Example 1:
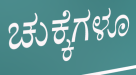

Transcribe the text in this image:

ಚುಕ್ಕೆಗಳೂ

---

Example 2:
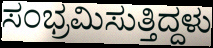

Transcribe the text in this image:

ಸಂಭ್ರಮಿಸುತ್ತಿದ್ದಳು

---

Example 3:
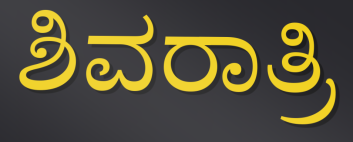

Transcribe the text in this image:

ಶಿವರಾತ್ರಿ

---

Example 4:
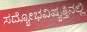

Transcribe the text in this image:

ಸದ್ಯೋಭವಿಷ್ಯತ್ತಿನಲ್ಲಿ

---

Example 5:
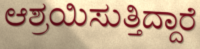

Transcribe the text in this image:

ಆಶ್ರಯಿಸುತ್ತಿದ್ದಾರೆ